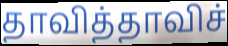
தாவித்தாவிச்